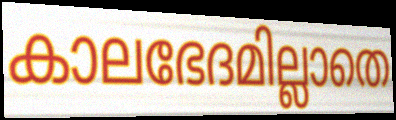
കാലഭേദമില്ലാതെ